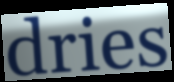
dries